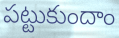
పట్టుకుందాం